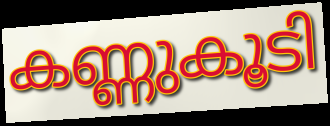
കണ്ണുകൂടി